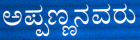
ಅಪ್ಪಣ್ಣನವರು